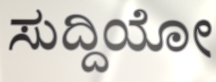
ಸುದ್ದಿಯೋ